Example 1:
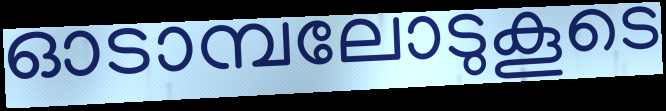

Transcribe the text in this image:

ഓടാമ്പലോടുകൂടെ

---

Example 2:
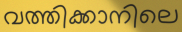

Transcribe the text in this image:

വത്തിക്കാനിലെ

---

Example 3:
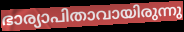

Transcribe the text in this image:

ഭാര്യാപിതാവായിരുന്നു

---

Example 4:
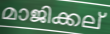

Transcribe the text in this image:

മാജിക്കല്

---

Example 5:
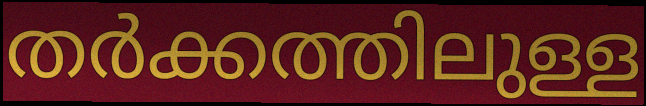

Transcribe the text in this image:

തർക്കത്തിലുള്ള